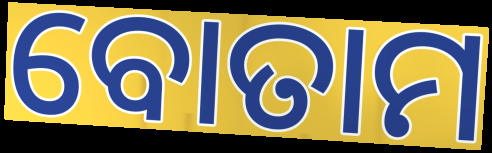
ବୋତାମ